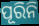
ପୂରିନି